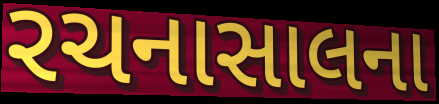
રચનાસાલના